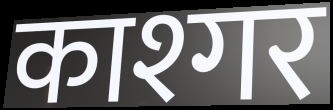
काश्गर